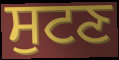
ਸੁਟਣ